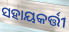
ସହାୟକର୍ତ୍ତୀ